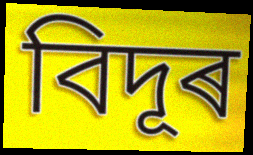
বিদূৰ